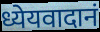
ध्येयवादानं